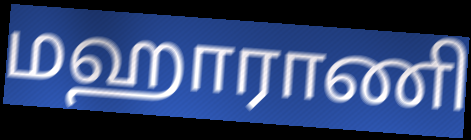
மஹாராணி